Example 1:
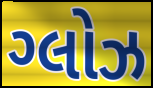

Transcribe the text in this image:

ગ્લોઝ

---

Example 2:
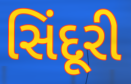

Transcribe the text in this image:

સિંદૂરી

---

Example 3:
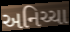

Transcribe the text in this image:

અનિચ્ચા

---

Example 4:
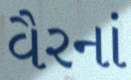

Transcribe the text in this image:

વૈરનાં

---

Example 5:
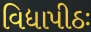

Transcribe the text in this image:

વિદ્યાપીઠઃ